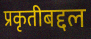
प्रकृतीबद्दल